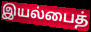
இயல்பைத்